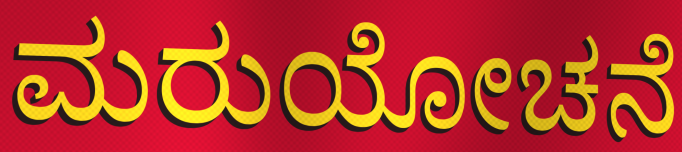
ಮರುಯೋಚನೆ